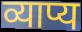
व्याप्य